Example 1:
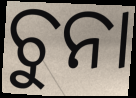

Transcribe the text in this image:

ଚୁନା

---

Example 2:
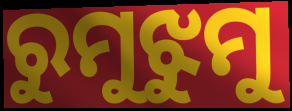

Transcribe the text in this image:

ରୁମୁଝୁମୁ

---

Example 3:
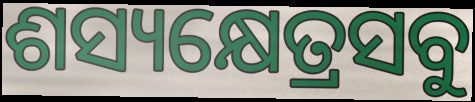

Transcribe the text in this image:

ଶସ୍ୟକ୍ଷେତ୍ରସବୁ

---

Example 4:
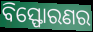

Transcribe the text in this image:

ବିସ୍ଫୋରଣର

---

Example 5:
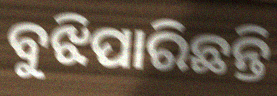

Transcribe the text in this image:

ବୁଝିପାରିଛନ୍ତି